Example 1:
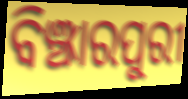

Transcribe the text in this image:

ବିଞ୍ଝାରପୁରୀ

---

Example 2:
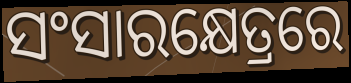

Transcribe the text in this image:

ସଂସାରକ୍ଷେତ୍ରରେ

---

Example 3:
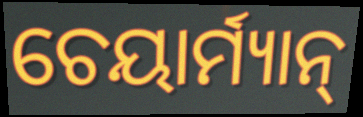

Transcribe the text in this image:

ଚେୟାର୍ମ୍ୟାନ୍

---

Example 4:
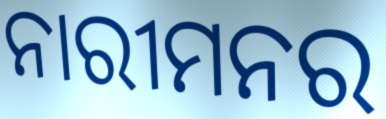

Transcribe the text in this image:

ନାରୀମନର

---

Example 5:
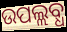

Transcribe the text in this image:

ଉପଲ୍ଲବ୍ଧ